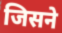
जिसने